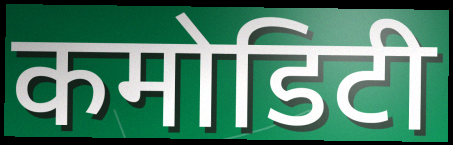
कमोडिटी